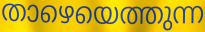
താഴെയെത്തുന്ന